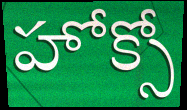
హోక్సో